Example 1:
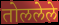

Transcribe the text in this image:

तोललेले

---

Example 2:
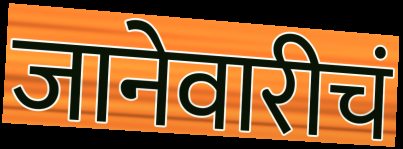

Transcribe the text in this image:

जानेवारीचं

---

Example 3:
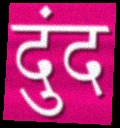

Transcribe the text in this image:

दुंद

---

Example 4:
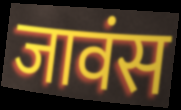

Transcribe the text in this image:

जावंस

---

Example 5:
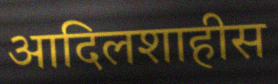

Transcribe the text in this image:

आदिलशाहीस